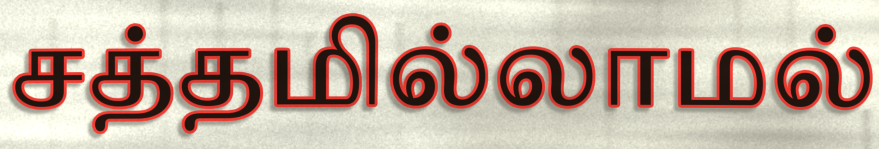
சத்தமில்லாமல்